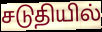
சடுதியில்